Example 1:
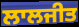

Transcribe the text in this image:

ਲਾਲਜੀਤ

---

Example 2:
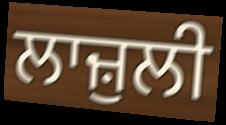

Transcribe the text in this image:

ਲਾਜ਼ੁਲੀ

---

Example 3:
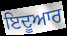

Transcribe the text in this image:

ਇਦੂਆਰ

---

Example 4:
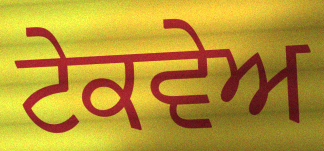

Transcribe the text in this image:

ਟੇਕਵੇਅ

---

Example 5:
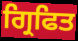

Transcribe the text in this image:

ਗ੍ਰਿਫਿਤ